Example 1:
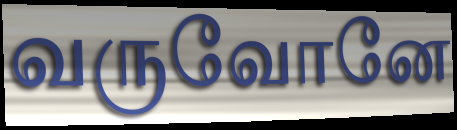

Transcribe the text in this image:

வருவோனே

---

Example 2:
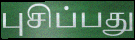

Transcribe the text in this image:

புசிப்பது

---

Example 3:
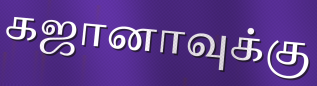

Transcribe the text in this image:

கஜானாவுக்கு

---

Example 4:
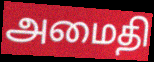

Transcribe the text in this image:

அமைதி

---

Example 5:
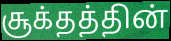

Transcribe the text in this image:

சூக்தத்தின்